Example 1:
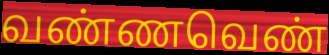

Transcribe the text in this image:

வண்ணவெண்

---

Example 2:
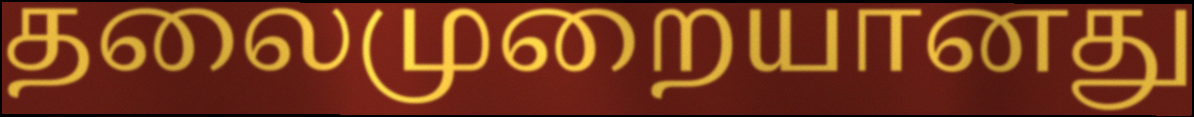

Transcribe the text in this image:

தலைமுறையானது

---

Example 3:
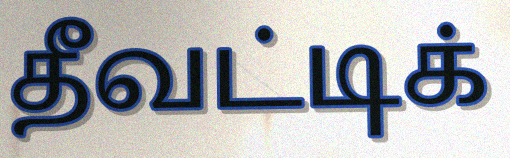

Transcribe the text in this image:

தீவட்டிக்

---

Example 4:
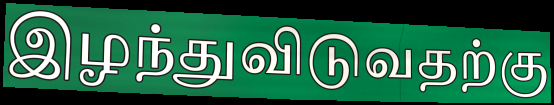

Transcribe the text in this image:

இழந்துவிடுவதற்கு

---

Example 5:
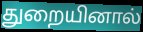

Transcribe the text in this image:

துறையினால்